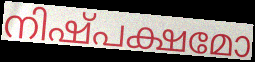
നിഷ്പക്ഷമോ